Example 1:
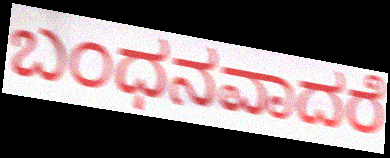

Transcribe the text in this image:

ಬಂಧನವಾದರೆ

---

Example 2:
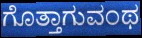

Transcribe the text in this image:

ಗೊತ್ತಾಗುವಂಥ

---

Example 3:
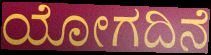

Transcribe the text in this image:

ಯೋಗದಿನೆ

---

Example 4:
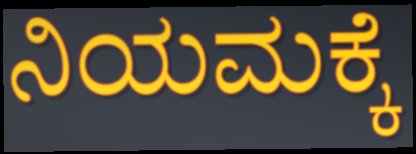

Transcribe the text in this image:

ನಿಯಮಕ್ಕೆ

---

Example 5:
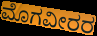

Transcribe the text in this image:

ಮೊಗವೀರರ